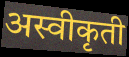
अस्वीकृती